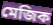
মেজিক